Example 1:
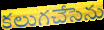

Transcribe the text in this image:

కలుగచేసెను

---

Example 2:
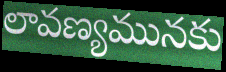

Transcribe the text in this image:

లావణ్యమునకు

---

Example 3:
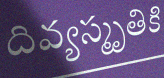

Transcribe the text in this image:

దివ్యస్మృతికి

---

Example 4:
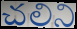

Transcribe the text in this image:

చలిని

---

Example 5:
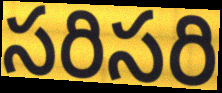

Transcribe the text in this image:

సరిసరి